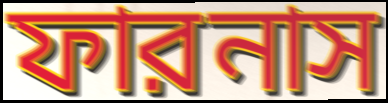
ফারনাস